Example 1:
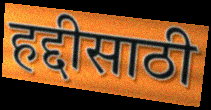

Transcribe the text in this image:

हद्दीसाठी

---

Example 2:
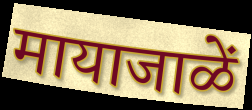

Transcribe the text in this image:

मायाजाळें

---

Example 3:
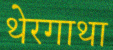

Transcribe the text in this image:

थेरगाथा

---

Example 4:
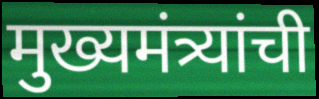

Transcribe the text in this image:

मुख्यमंत्र्यांची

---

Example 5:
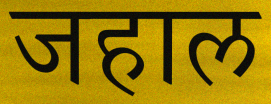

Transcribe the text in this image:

जहाल